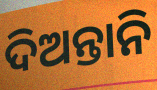
ଦିଅନ୍ତାନି